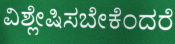
ವಿಶ್ಲೇಷಿಸಬೇಕೆಂದರೆ